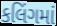
કલિંગમાં